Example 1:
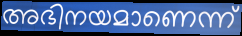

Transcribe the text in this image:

അഭിനയമാണെന്ന്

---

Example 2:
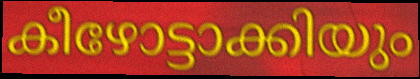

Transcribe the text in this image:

കീഴോട്ടാക്കിയും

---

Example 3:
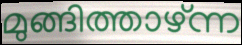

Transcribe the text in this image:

മുങ്ങിത്താഴ്ന്ന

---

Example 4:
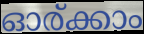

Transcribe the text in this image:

ഓര്ക്കാം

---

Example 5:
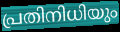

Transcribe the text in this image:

പ്രതിനിധിയും